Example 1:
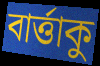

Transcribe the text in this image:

বার্ত্তাকু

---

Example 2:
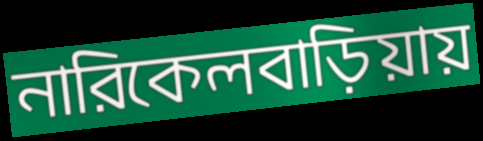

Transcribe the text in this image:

নারিকেলবাড়িয়ায়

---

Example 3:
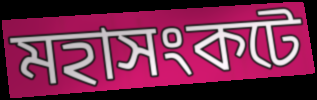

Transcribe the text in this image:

মহাসংকটে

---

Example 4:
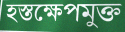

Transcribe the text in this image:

হস্তক্ষেপমুক্ত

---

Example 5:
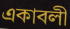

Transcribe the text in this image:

একাবলী